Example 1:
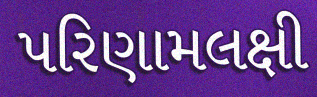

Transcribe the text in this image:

પરિણામલક્ષી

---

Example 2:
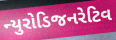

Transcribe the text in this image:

ન્યુરોડિજનરેટિવ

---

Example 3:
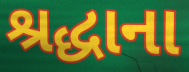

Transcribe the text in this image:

શ્રદ્ધાના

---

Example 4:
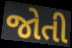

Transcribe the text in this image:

જોતી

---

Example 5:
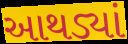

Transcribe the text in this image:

આથડ્યાં